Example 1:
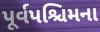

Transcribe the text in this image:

પૂર્વપશ્ચિમના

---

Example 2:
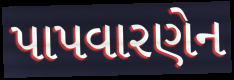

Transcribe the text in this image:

પાપવારણેન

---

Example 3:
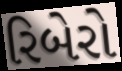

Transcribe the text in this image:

રિબેરો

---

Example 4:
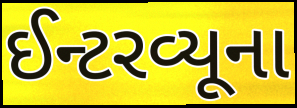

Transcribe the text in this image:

ઈન્ટરવ્યૂના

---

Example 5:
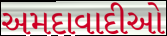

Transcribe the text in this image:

અમદાવાદીઓ